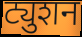
ट्युशन